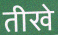
तीखे